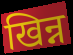
खिन्न